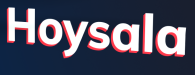
Hoysala